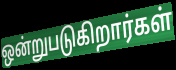
ஒன்றுபடுகிறார்கள்